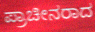
ಪ್ರಾಚೀನರಾದ